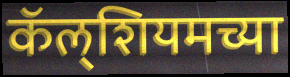
कॅल्शियमच्या